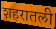
शहरातली